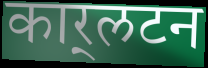
कार्लटन